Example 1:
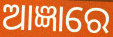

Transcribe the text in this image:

ଆଜ୍ଞାରେ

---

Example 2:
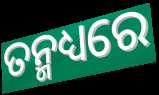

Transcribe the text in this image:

ତନ୍ମଧ୍ୟରେ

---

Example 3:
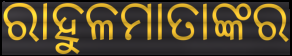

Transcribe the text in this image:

ରାହୁଳମାତାଙ୍କର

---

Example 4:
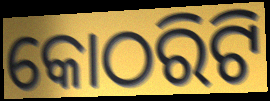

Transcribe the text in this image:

କୋଠରିଟି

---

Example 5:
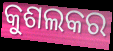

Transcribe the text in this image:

କୁଶଲକର